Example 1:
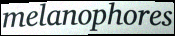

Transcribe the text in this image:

melanophores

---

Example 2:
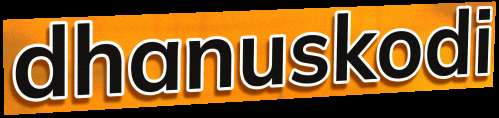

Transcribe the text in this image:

dhanuskodi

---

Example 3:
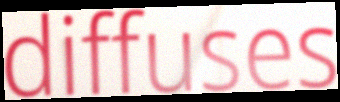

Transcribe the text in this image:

diffuses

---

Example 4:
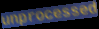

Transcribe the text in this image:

unprocessed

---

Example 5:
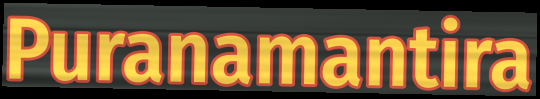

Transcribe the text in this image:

Puranamantira